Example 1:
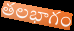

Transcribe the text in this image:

తలభాగం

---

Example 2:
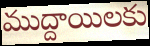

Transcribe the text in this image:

ముద్దాయిలకు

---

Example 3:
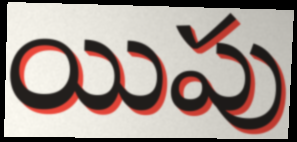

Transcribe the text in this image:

యిపు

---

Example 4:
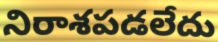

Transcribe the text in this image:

నిరాశపడలేదు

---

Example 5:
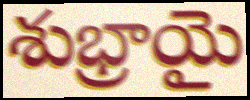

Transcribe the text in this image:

శుభ్రాయై